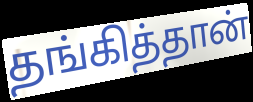
தங்கித்தான்